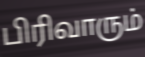
பிரிவாரும்